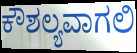
ಕೌಶಲ್ಯವಾಗಲಿ